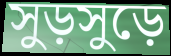
সুড়সুড়ে